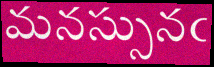
మనస్సునఁ